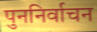
पुननिर्वाचन